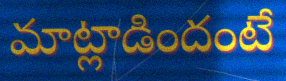
మాట్లాడిందంటే